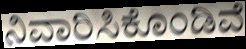
ನಿವಾರಿಸಿಕೊಂಡಿವೆ